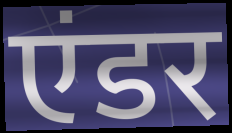
एंडर